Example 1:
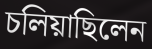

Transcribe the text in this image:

চলিয়াছিলেন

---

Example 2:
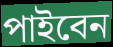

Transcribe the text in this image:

পাইবেন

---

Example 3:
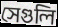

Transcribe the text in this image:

সেগুলি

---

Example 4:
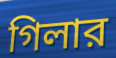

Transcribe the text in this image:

গিলার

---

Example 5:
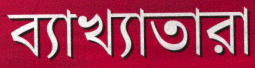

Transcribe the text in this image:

ব্যাখ্যাতারা